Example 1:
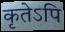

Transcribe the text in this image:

कृतेऽपि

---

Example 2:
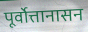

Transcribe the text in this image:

पूर्वोत्तानासन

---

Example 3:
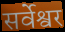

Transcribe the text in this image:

सर्वेश्वर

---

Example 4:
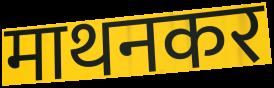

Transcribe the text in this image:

माथनकर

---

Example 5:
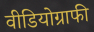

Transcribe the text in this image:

वीडियोग्राफी